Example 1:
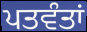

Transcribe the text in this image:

ਪਤਵੰਤਾਂ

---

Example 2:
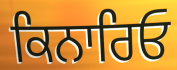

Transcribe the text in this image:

ਕਿਨਾਰਿਓ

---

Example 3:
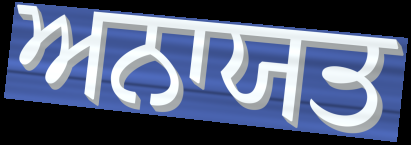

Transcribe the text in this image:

ਅਨਾਯਤ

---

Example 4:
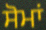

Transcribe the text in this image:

ਸੋਮਾਂ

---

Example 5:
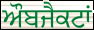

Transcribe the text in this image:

ਔਬਜੈਕਟਾਂ